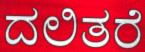
ದಲಿತರೆ